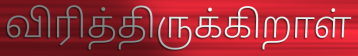
விரித்திருக்கிறாள்